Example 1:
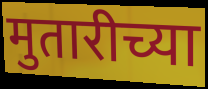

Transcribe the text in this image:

मुतारीच्या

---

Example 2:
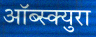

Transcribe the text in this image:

ऑब्स्क्युरा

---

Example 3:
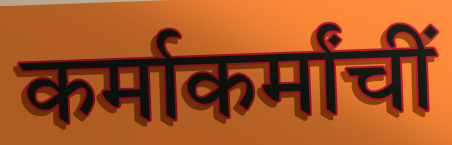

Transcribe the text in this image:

कर्माकर्मांचीं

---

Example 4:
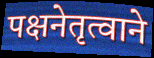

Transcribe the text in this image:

पक्षनेतृत्वाने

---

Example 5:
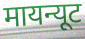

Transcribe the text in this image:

मायन्यूट